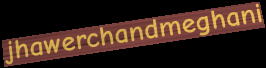
jhawerchandmeghani